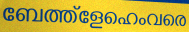
ബേത്ത്ളേഹെംവരെ